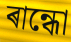
ৰান্ধো